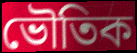
ভৌতিক